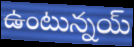
ఉంటున్నయ్